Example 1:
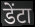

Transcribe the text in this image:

डेंटा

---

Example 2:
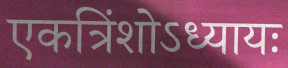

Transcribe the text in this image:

एकत्रिंशोऽध्यायः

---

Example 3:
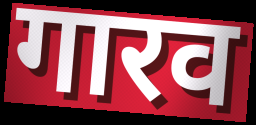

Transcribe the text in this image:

गारव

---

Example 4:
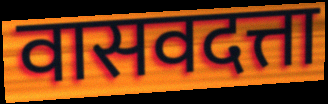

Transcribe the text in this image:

वासवदत्ता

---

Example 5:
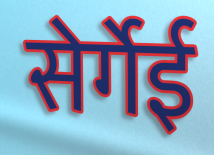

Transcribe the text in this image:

सेर्गेई